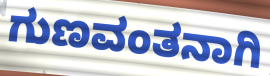
ಗುಣವಂತನಾಗಿ